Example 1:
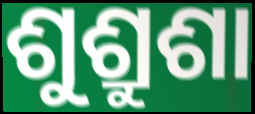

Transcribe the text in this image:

ଶୁଶ୍ରୁଶା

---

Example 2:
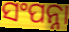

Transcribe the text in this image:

ସଂପନ୍ନା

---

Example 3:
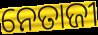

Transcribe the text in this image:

ନେତାଜୀ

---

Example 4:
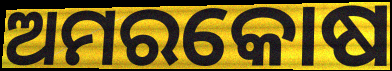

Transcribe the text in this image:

ଅମରକୋଷ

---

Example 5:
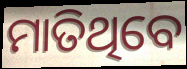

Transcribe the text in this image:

ମାତିଥିବେ